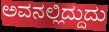
ಅವನಲ್ಲಿದ್ದುದು